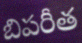
బిపరీత